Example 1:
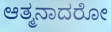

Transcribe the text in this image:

ಆತ್ಮನಾದರೋ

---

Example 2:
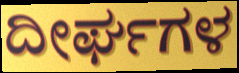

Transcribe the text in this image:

ದೀರ್ಘಗಳ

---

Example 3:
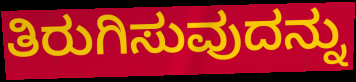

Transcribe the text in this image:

ತಿರುಗಿಸುವುದನ್ನು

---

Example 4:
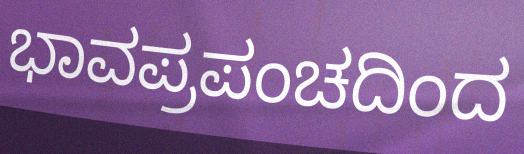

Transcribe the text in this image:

ಭಾವಪ್ರಪಂಚದಿಂದ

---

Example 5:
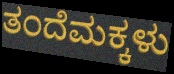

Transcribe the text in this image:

ತಂದೆಮಕ್ಕಳು